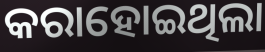
କରାହୋଇଥିଲା